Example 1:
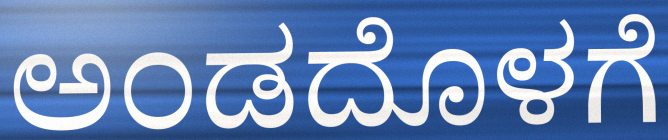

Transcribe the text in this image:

ಅಂಡದೊಳಗೆ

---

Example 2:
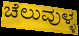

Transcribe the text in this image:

ಚೆಲುವುಳ್ಳ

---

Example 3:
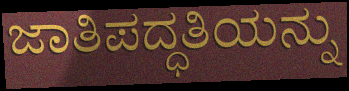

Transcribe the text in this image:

ಜಾತಿಪದ್ಧತಿಯನ್ನು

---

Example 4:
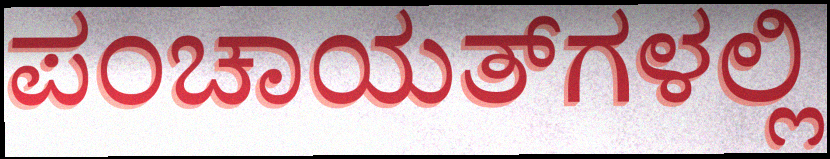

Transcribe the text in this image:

ಪಂಚಾಯತ್‌ಗಳಲ್ಲಿ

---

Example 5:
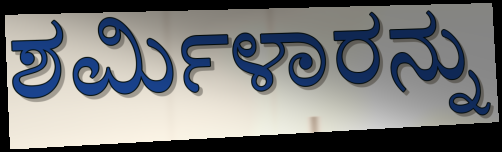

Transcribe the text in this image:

ಶರ್ಮಿಳಾರನ್ನು